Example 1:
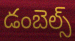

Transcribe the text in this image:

డంబెల్స్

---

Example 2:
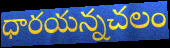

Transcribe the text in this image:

ధారయన్నచలం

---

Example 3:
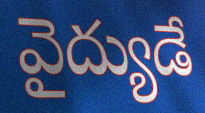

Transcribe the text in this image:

వైద్యుడే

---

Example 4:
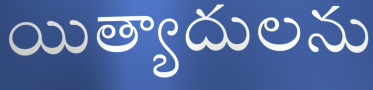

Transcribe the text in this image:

యిత్యాదులను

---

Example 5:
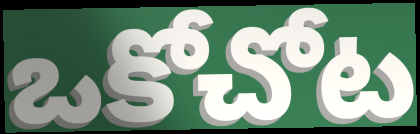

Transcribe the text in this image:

ఒకోచోట